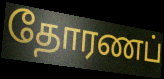
தோரணப்